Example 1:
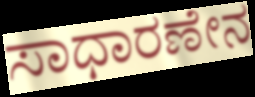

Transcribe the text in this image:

ಸಾಧಾರಣೇನ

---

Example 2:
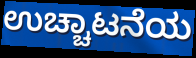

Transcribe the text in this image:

ಉಚ್ಚಾಟನೆಯ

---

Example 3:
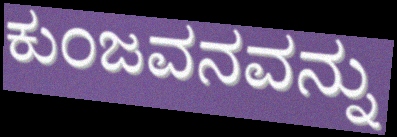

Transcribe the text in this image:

ಕುಂಜವನವನ್ನು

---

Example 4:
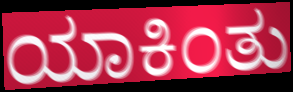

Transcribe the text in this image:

ಯಾಕಿಂತು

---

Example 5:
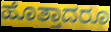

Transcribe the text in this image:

ಹೊತ್ತಾದರೂ